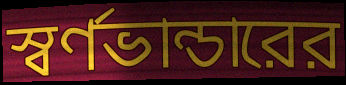
স্বর্ণভান্ডারের